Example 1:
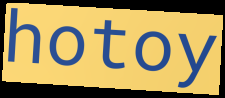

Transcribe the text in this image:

hotoy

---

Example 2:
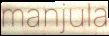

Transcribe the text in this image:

manjula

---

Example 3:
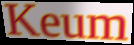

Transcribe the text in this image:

Keum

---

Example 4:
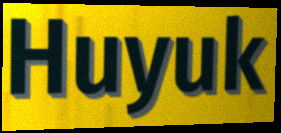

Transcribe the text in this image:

Huyuk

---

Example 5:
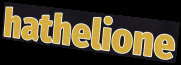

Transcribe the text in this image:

hathelione